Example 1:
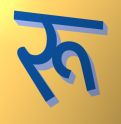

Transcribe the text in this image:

रू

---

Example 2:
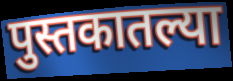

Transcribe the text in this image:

पुस्तकातल्या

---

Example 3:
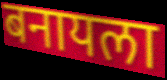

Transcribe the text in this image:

बनायला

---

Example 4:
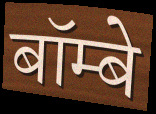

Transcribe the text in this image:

बॉम्बे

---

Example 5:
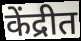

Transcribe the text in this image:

केंद्रीत